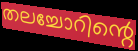
തലച്ചോറിന്റെ